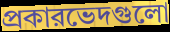
প্রকারভেদগুলো